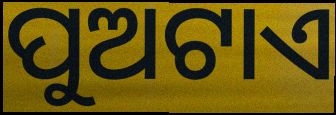
ପୁଅଟାଏ